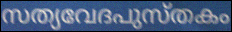
സത്യവേദപുസ്തകം